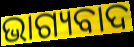
ଭାଗ୍ୟବାଦ